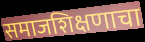
समाजशिक्षणाचा